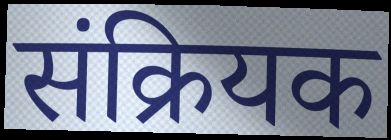
संक्रियक